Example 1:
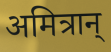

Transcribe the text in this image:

अमित्रान्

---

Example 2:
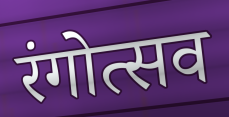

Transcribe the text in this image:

रंगोत्सव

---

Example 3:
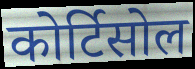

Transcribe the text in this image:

कोर्टिसोल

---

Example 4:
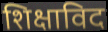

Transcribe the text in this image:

शिक्षाविद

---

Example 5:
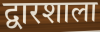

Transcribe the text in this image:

द्वारशाला